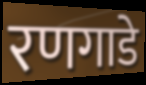
रणगाडे